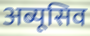
अब्यूसिव